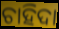
ଚାହିଦା